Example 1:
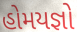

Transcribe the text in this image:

હોમયજ્ઞો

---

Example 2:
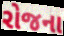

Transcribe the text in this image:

રોજના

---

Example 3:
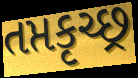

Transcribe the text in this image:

તપ્તકૃચ્છ્ર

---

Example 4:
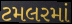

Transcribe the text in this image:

ટમલરમાં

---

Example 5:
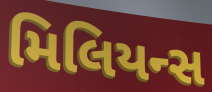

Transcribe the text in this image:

મિલિયન્સ